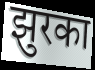
झुरका